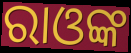
ରାଓଙ୍କ